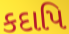
કદાપિ